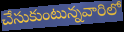
చేసుకుంటున్నవారిలో